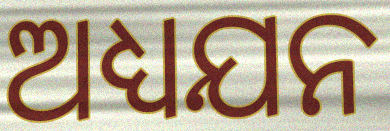
ଅଧ୍ୟଯନ